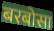
बरबोसा